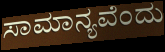
ಸಾಮಾನ್ಯವೆಂದು